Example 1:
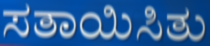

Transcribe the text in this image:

ಸತಾಯಿಸಿತು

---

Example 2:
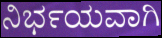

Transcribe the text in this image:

ನಿರ್ಭಯವಾಗಿ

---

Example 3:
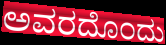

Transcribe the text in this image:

ಅವರದೊಂದು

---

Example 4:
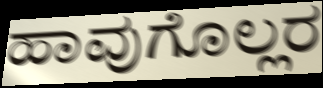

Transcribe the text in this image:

ಹಾವುಗೊಲ್ಲರ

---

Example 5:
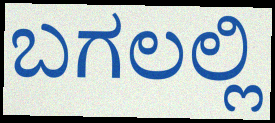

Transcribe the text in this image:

ಬಗಲಲ್ಲಿ